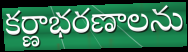
కర్ణాభరణాలను